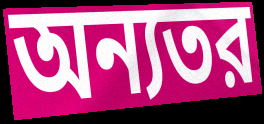
অন্যতর